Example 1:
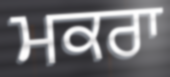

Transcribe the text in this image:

ਮਕਰਾ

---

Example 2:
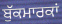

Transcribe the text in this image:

ਬੁੱਕਮਾਰਕਾਂ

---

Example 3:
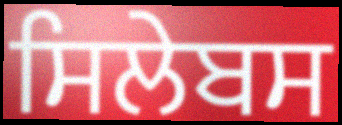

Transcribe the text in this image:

ਸਿਲੇਬਸ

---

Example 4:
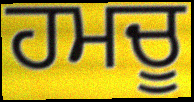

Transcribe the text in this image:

ਹਮਚੂ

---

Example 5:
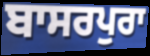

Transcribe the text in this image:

ਬਾਸਰਪੁਰਾ